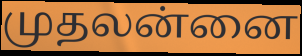
முதலன்னை